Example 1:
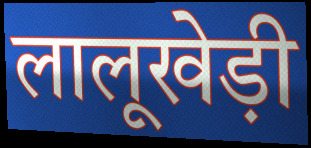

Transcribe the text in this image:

लालूखेड़ी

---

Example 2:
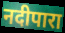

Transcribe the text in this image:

नदीपारा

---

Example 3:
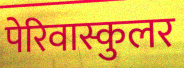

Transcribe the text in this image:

पेरिवास्कुलर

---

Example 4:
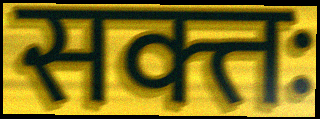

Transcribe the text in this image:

सक्तः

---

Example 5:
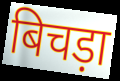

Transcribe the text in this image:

बिचड़ा